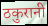
ठकुरानी